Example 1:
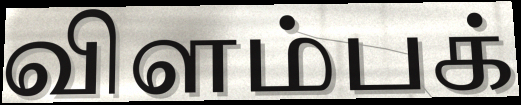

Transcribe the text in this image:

விளம்பக்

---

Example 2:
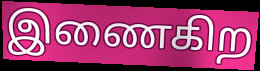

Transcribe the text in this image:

இணைகிற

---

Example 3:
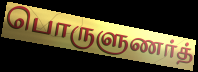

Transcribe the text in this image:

பொருளுணர்த்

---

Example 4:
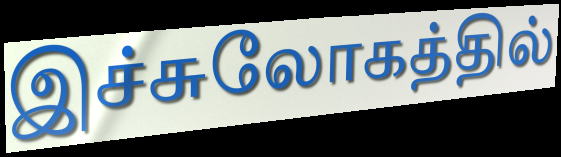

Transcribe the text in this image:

இச்சுலோகத்தில்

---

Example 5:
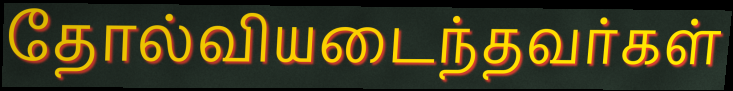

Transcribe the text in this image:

தோல்வியடைந்தவர்கள்